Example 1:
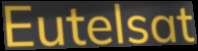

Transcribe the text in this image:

Eutelsat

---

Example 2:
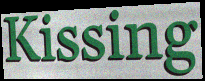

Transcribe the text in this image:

Kissing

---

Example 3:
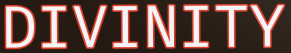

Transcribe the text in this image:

DIVINITY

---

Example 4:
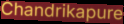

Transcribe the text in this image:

Chandrikapure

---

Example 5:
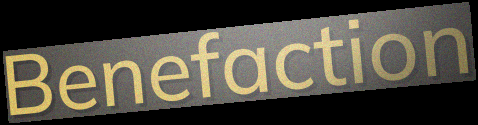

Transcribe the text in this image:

Benefaction